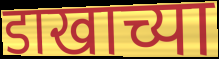
डाखाच्या